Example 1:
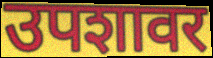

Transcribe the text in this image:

उपशावर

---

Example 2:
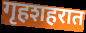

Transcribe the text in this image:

गृहशहरात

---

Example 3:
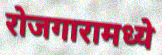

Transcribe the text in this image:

रोजगारामध्ये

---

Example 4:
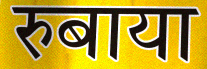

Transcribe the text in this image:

रुबाया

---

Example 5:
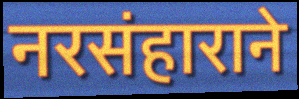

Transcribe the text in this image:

नरसंहाराने